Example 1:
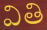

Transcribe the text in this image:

వితి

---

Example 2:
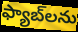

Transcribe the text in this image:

ఫ్యాబ్‌లను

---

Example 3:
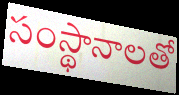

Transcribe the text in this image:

సంస్థానాలతో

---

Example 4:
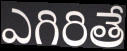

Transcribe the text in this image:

ఎగిరితే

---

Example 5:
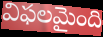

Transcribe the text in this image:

విఫలమైంది